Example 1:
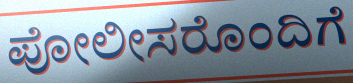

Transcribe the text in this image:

ಪೋಲೀಸರೊಂದಿಗೆ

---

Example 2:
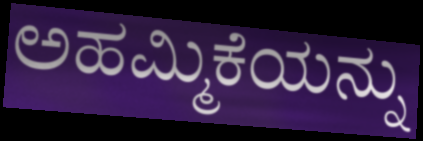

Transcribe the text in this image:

ಅಹಮ್ಮಿಕೆಯನ್ನು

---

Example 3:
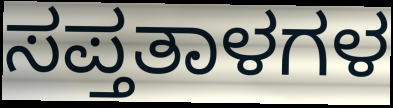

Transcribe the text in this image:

ಸಪ್ತತಾಳಗಳ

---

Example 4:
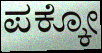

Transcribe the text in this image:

ಪಕ್ಕೋ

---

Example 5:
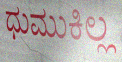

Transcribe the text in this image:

ಧುಮುಕಿಲ್ಲ